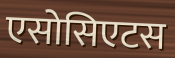
एसोसिएटस